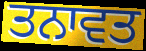
ਤਨਾਵਤ